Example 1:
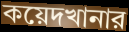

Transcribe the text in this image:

কয়েদখানার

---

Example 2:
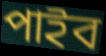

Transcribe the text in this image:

পাইব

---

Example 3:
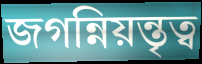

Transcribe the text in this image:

জগন্নিয়ন্তৃত্ব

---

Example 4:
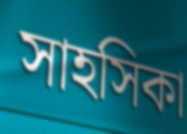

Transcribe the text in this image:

সাহসিকা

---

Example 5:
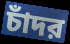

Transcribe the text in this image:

চাঁদর